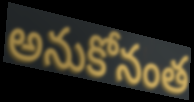
అనుకోనంత